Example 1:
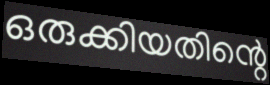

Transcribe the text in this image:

ഒരുക്കിയതിന്റെ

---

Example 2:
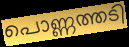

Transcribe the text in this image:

പൊണ്ണത്തടി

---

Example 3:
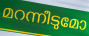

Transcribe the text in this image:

മറന്നീടുമോ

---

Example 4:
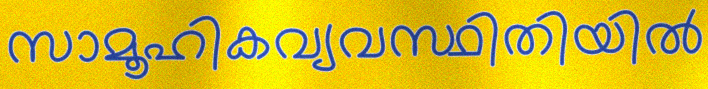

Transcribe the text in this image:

സാമൂഹികവ്യവസ്ഥിതിയിൽ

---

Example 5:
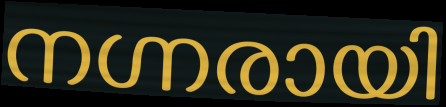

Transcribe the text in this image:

നഗ്നരായി